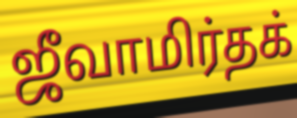
ஜீவாமிர்தக்